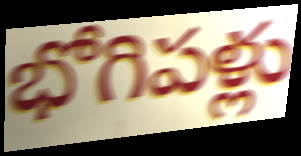
భోగిపళ్లు